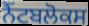
ਨੈੱਟਬਲੋਕਸ